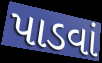
પાડવાં